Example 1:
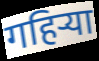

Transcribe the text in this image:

गहिर्‍या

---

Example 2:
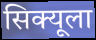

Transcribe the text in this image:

सिक्यूला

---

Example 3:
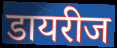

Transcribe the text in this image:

डायरीज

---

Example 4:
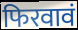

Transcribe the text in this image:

फिरवावं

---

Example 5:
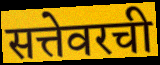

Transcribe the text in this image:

सत्तेवरची